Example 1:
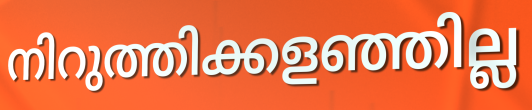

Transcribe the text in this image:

നിറുത്തിക്കളഞ്ഞില്ല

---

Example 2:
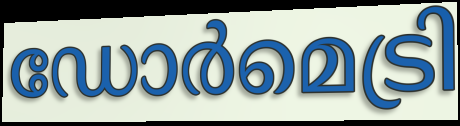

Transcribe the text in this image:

ഡോർമെട്രി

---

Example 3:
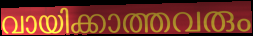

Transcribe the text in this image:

വായിക്കാത്തവരും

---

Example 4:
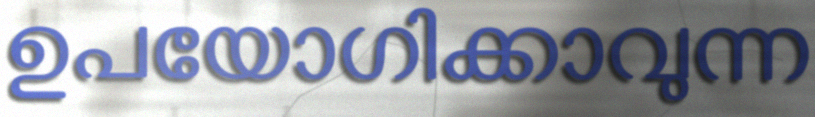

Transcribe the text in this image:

ഉപയോഗിക്കാവുന്ന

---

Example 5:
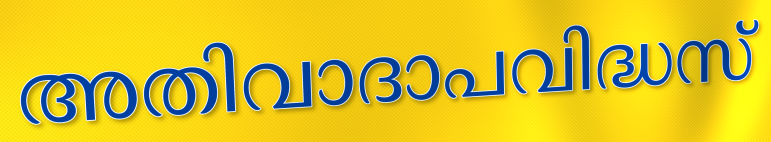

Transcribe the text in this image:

അതിവാദാപവിദ്ധസ്